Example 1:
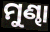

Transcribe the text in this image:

ମୁଣ୍ଢା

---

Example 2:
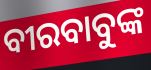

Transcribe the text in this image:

ବୀରବାବୁଙ୍କ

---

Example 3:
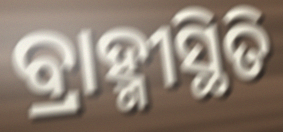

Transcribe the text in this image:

ବ୍ରାହ୍ମୀସ୍ଥିତି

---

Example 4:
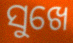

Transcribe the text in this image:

ସୁଖେ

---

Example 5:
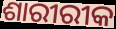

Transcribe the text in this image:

ଶାରୀରୀକ